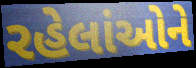
રહેલાંઓને